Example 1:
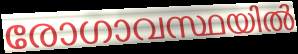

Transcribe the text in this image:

രോഗാവസ്ഥയിൽ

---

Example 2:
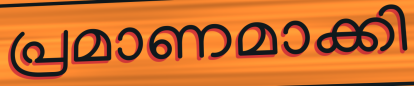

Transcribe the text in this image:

പ്രമാണമാക്കി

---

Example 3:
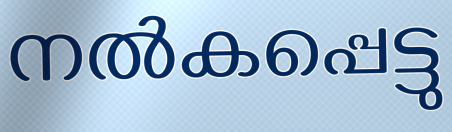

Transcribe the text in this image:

നൽകപ്പെട്ടു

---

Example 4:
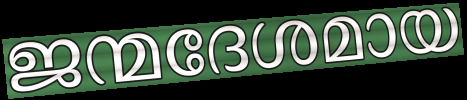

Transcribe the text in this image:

ജന്മദേശമായ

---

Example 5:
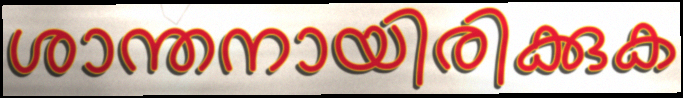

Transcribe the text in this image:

ശാന്തനായിരിക്കുക